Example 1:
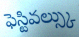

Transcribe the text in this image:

ఫెస్టివల్స్కు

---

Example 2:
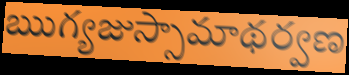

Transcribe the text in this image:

ఋగ్యజుస్సామాథర్వణ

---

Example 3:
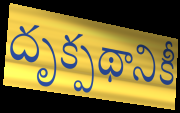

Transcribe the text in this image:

దృక్పథానికీ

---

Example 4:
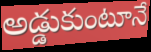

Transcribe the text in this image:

అడ్డుకుంటూనే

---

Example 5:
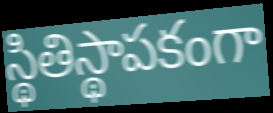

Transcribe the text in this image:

స్థితిస్థాపకంగా